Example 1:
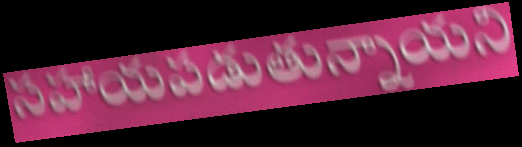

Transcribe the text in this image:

సహాయపడుతున్నాయని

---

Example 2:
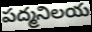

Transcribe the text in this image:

పద్మనిలయ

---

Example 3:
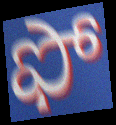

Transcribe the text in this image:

ఫో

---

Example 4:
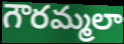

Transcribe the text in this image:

గౌరమ్మలా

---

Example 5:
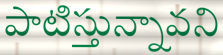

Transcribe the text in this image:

పాటిస్తున్నావని